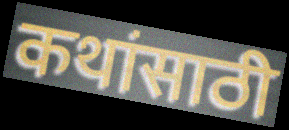
कथांसाठी